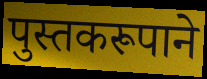
पुस्तकरूपाने